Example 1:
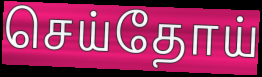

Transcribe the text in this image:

செய்தோய்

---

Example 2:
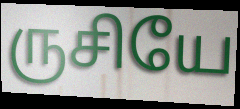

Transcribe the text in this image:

ருசியே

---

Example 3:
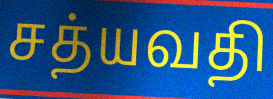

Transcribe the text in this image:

சத்யவதி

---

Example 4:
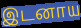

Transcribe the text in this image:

இடனாய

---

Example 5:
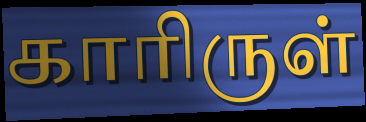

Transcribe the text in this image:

காரிருள்